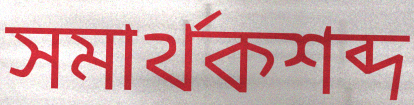
সমার্থকশব্দ